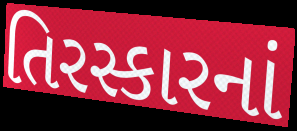
તિરસ્કારનાં